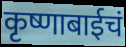
कृष्णाबाईचं